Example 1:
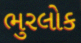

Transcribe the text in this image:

ભુરલોક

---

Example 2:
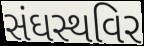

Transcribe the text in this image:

સંઘસ્થવિર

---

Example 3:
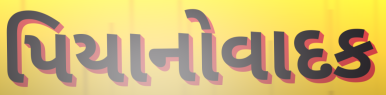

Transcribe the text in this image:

પિયાનોવાદક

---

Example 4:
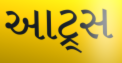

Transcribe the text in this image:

આટ્ર્સ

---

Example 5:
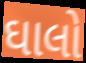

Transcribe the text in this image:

ઘાલો